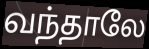
வந்தாலே